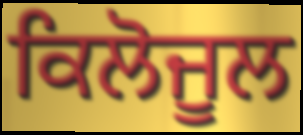
ਕਿਲੋਜੂਲ